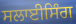
ਸਲਾਈਸਿੰਗ